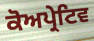
ਕੋਅਪ੍ਰੇਟਿਵ